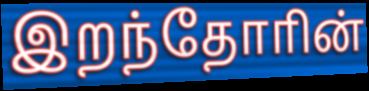
இறந்தோரின்